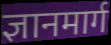
ज्ञानमार्ग